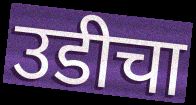
उडीचा